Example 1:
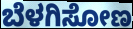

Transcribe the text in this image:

ಬೆಳಗಿಸೋಣ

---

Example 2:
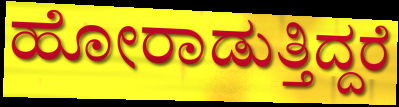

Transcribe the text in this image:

ಹೋರಾಡುತ್ತಿದ್ದರೆ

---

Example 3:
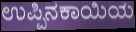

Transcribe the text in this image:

ಉಪ್ಪಿನಕಾಯಿಯ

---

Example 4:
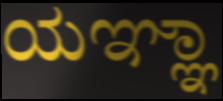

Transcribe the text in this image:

ಯಞ್ಞಾ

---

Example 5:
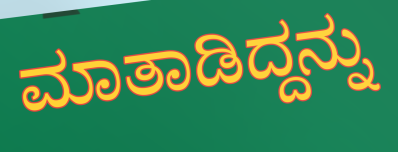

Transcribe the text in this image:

ಮಾತಾಡಿದ್ದನ್ನು